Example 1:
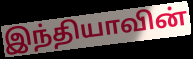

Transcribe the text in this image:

இந்தியாவின்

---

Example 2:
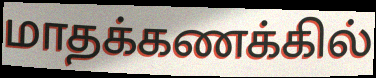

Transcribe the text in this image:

மாதக்கணக்கில்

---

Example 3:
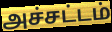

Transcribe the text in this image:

அச்சட்டம்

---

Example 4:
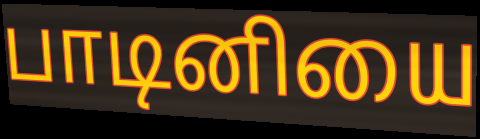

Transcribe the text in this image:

பாடினியை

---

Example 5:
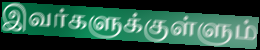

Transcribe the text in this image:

இவர்களுக்குள்ளும்